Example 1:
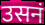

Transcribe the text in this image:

उसनं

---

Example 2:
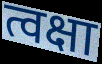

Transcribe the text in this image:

त्वक्षा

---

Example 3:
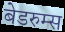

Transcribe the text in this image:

बेडरुम्स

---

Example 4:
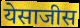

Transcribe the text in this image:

येसाजीस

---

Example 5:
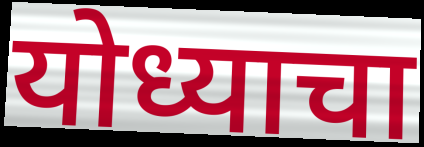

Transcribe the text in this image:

योध्याचा